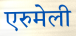
एरुमेली